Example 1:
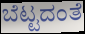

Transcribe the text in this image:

ಬೆಟ್ಟದಂತೆ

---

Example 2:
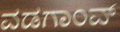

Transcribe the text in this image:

ವಡಗಾಂವ್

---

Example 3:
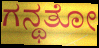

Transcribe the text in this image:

ಗನ್ಥತೋ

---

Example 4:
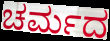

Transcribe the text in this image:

ಚರ್ಮದ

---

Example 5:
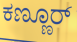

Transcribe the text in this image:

ಕಣ್ಣೂರ್